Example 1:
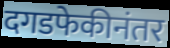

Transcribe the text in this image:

दगडफेकीनंतर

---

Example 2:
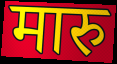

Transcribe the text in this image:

मारु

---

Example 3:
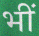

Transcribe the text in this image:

भीं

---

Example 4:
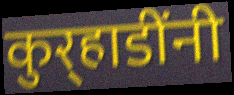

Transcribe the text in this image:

कुर्‍हाडींनी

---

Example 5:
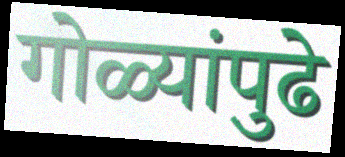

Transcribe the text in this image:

गोळ्यांपुढे